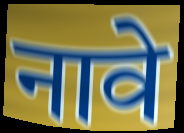
नावे